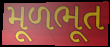
મૂળભૂત